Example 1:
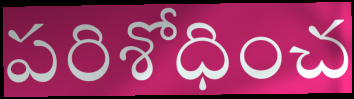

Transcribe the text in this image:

పరిశోధించ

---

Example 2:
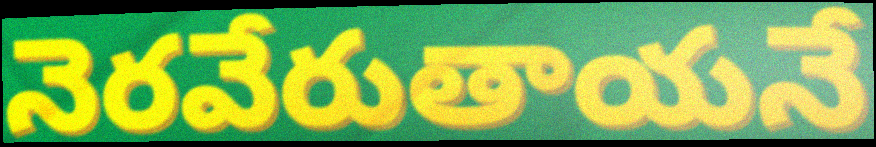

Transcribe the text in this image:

నెరవేరుతాయనే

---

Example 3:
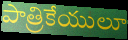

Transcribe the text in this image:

పాత్రికేయులూ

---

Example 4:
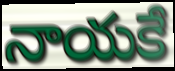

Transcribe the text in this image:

నాయకే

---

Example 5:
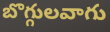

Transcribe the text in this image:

బొగ్గులవాగు